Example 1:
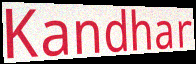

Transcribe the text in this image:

Kandhar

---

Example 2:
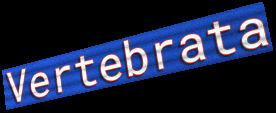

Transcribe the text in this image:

Vertebrata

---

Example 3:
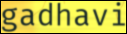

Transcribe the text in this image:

gadhavi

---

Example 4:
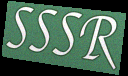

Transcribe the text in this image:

SSSR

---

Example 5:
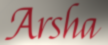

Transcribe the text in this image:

Arsha